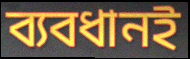
ব্যবধানই